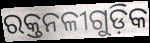
ରକ୍ତନଳୀଗୁଡ଼ିକ